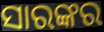
ସାରଙ୍କର